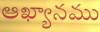
ఆఖ్యానము